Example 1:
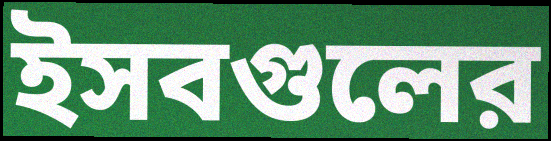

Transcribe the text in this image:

ইসবগুলের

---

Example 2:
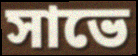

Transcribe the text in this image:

সাভে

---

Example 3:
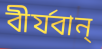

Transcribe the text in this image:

বীর্যবান্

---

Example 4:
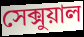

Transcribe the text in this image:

সেক্সুয়াল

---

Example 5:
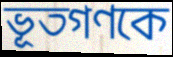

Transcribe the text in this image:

ভূতগণকে